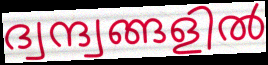
ദ്വന്ദ്വങ്ങളിൽ